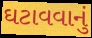
ઘટાવવાનું